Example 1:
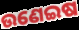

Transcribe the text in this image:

ଉଣେଇଷ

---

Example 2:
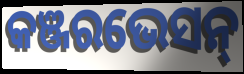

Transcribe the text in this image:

କଞ୍ଜରଭେସନ୍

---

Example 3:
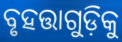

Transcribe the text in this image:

ବୃହତ୍ତାଗୁଡ଼ିକୁ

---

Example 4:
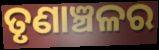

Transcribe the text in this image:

ତୃଣାଞ୍ଚଳର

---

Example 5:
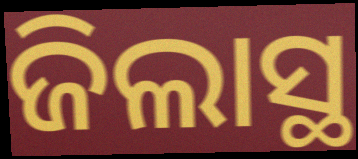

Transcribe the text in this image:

ଜିଲାସ୍ଥ